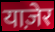
याज़ेर